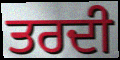
ਤਰਦੀ